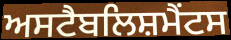
ਅਸਟੈਬਲਿਸ਼ਮੈਂਟਸ